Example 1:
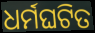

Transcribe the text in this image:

ଧର୍ମଘଟିତ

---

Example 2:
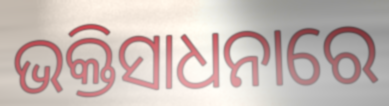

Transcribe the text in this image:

ଭକ୍ତିସାଧନାରେ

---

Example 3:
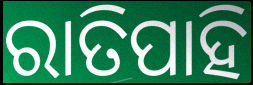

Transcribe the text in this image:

ରାତିପାହି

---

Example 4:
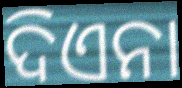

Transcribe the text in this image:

ଦିଏନା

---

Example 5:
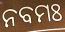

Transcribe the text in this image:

ନବମଃ